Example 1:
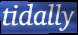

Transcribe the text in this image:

tidally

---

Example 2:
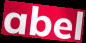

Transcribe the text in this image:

abel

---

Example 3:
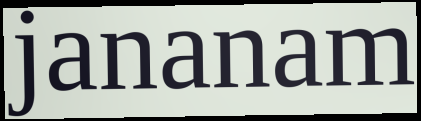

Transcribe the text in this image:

jananam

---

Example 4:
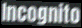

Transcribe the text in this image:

Incognito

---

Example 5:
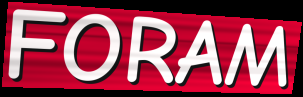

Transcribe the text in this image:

FORAM